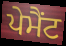
ਪੇਮੈਂਟ